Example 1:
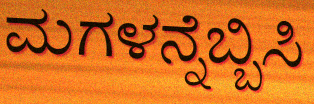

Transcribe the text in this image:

ಮಗಳನ್ನೆಬ್ಬಿಸಿ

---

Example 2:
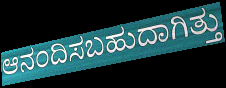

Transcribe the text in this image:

ಆನಂದಿಸಬಹುದಾಗಿತ್ತು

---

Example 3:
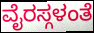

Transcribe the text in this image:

ವೈರಸ್ಗಳಂತೆ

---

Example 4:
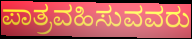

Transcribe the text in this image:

ಪಾತ್ರವಹಿಸುವವರು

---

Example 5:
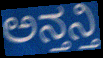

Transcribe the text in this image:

ಅನ್ತನ್ತಿ